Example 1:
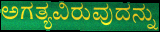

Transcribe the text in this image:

ಅಗತ್ಯವಿರುವುದನ್ನು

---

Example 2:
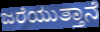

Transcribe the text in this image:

ಜರೆಯುತ್ತಾನೆ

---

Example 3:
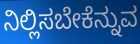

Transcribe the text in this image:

ನಿಲ್ಲಿಸಬೇಕೆನ್ನುವ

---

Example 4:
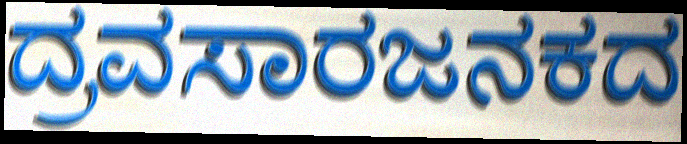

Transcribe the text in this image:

ದ್ರವಸಾರಜನಕದ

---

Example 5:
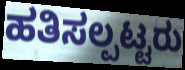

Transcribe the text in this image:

ಹತಿಸಲ್ಪಟ್ಟರು